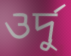
ওর্দু